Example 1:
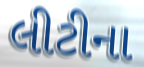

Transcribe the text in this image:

લીટીના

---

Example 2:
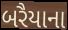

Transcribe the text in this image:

બરૈયાના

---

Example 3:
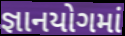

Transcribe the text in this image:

જ્ઞાનયોગમાં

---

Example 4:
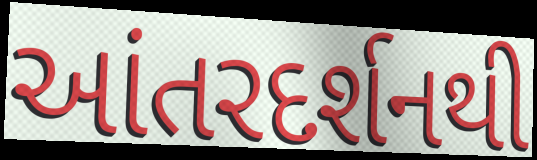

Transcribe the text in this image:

આંતરદર્શનથી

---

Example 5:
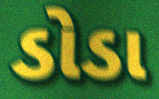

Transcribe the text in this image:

ડોડા